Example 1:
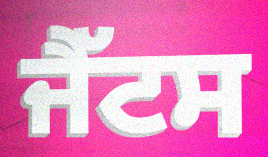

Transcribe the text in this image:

ਜੈੱਟਸ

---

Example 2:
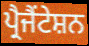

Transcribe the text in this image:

ਪ੍ਰੈਜੈਂਟੇਸ਼ਨ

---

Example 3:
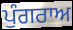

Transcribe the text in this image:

ਪੁੰਗਰਾਅ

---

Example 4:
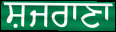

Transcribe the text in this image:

ਸ਼ਜਰਾਣਾ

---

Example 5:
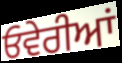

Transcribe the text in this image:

ਓਵੇਰੀਆਂ